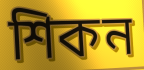
শিকন